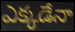
ఎక్కడేనా